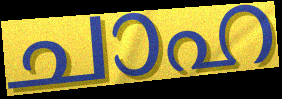
ചാഹ